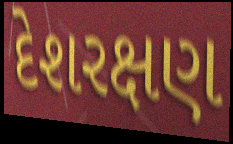
દેશરક્ષણ